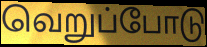
வெறுப்போடு